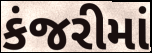
કંજરીમાં